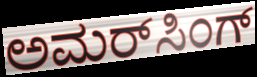
ಅಮರ್‌ಸಿಂಗ್